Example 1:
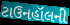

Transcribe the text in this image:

ટાઉનહૉલની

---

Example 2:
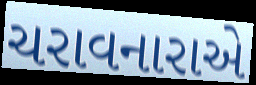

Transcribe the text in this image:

ચરાવનારાએ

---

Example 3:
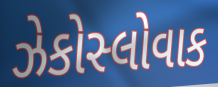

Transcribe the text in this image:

ઝેકોસ્લોવાક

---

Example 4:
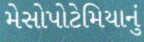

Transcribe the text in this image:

મેસોપોટેમિયાનું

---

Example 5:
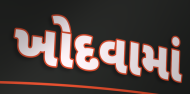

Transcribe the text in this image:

ખોદવામાં